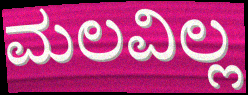
ಮಲವಿಲ್ಲ